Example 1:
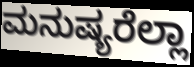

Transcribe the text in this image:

ಮನುಷ್ಯರೆಲ್ಲಾ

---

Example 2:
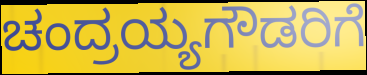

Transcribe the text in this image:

ಚಂದ್ರಯ್ಯಗೌಡರಿಗೆ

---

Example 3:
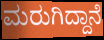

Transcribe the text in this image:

ಮರುಗಿದ್ದಾನೆ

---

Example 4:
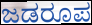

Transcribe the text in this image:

ಜಡರೂಪ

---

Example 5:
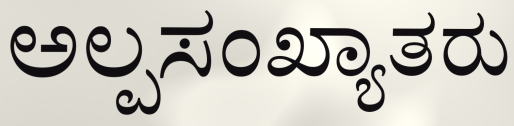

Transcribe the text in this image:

ಅಲ್ಪಸಂಖ್ಯಾತರು